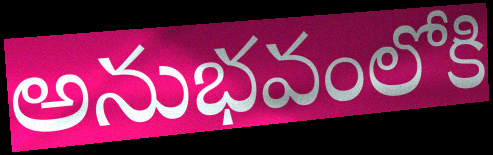
అనుభవంలోకి